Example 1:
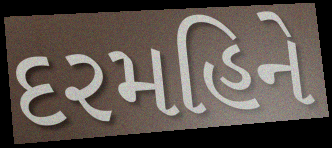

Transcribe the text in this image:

દરમહિને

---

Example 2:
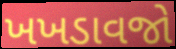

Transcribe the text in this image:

ખખડાવજો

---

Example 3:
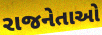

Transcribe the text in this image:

રાજનેતાઓ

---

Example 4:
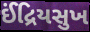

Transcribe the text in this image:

ઈંદ્રિયસુખ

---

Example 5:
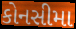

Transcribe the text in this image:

કોનસીમા